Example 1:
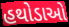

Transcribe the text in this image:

હથોડાઓ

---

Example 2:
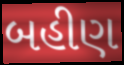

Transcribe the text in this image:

બહીણ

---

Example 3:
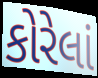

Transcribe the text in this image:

કોરેલાં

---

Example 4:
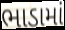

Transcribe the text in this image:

ભાડામાં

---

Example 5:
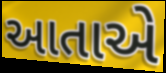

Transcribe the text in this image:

આતાએ